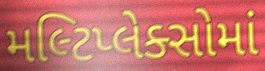
મલ્ટિપ્લેક્સોમાં